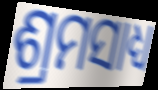
ଶ୍ରମସାଧ୍ୟ